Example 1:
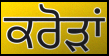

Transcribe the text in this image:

ਕਰੋੜਾਂ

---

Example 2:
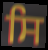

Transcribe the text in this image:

ਸਿ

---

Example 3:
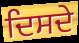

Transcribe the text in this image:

ਦਿਸਦੇ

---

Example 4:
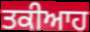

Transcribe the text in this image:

ਤਕੀਆਹ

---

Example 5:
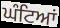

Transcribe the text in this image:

ਘੰਟਿਆਂ